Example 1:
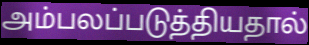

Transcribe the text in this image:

அம்பலப்படுத்தியதால்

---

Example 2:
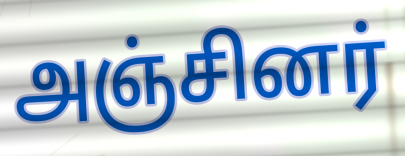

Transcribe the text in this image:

அஞ்சினர்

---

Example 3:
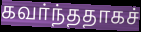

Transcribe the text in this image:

கவர்ந்ததாகச்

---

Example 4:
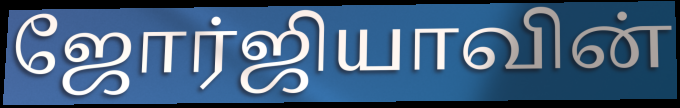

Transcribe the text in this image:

ஜோர்ஜியாவின்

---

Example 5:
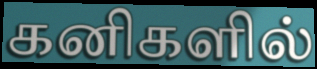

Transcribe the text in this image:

கனிகளில்